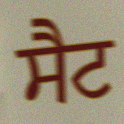
ਸੈਟ